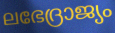
ലഭേദ്രാജ്യം